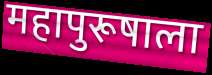
महापुरूषाला